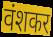
वंशकर